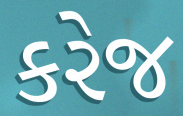
કરેજ